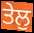
ਤੇਲੁ